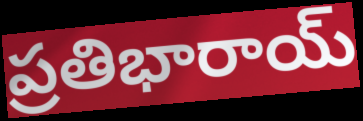
ప్రతిభారాయ్